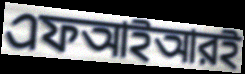
এফআইআরই